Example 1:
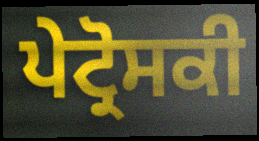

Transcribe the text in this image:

ਪੇਟ੍ਰੋਸਕੀ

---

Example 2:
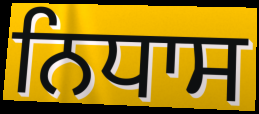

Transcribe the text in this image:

ਨਿਧਾਸ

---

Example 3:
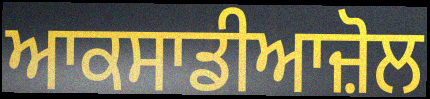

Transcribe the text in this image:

ਆਕਸਾਡੀਆਜ਼ੋਲ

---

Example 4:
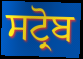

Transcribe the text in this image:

ਸਟ੍ਰੋਬ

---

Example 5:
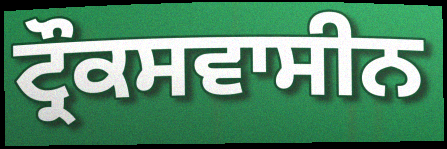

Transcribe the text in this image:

ਟ੍ਰੌਕਸਵਾਸੀਨ